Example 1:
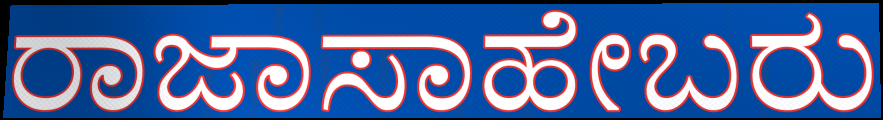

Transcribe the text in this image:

ರಾಜಾಸಾಹೇಬರು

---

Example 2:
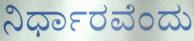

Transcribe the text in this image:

ನಿರ್ಧಾರವೆಂದು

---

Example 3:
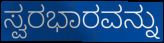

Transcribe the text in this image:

ಸ್ವರಭಾರವನ್ನು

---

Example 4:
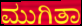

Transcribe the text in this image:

ಮುಗಿತಾ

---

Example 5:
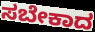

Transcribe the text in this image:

ಸಬೇಕಾದ